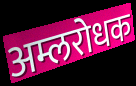
अम्लरोधक